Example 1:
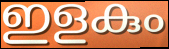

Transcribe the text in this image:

ഇളകും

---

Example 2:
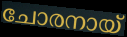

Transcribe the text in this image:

ചോരനായ്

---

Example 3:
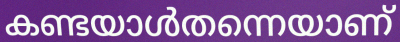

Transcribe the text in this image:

കണ്ടയാൾതന്നെയാണ്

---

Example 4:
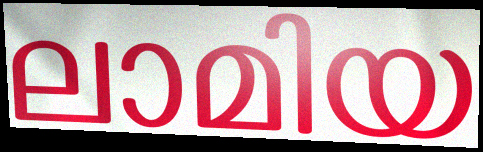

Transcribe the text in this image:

ലാമിയ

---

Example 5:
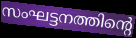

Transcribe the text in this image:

സംഘട്ടനത്തിന്റെ